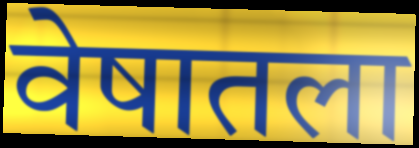
वेषातला